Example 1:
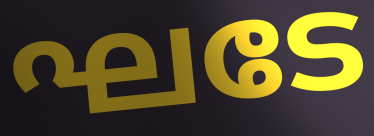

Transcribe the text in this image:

ഘടേ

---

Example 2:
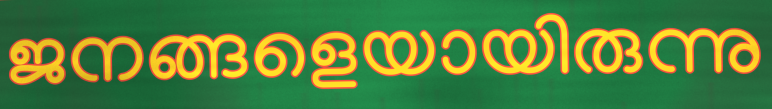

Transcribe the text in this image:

ജനങ്ങളെയായിരുന്നു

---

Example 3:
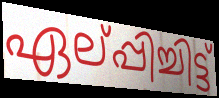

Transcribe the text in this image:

ഏല്പ്പിച്ചിട്ട്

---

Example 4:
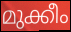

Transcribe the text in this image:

മുക്കീം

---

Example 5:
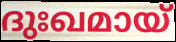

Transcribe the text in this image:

ദുഃഖമായ്